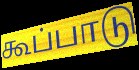
கூப்பாடு